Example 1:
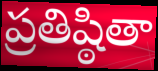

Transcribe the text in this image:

ప్రతిష్ఠితా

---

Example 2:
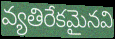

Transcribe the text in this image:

వ్యతిరేకమైనవి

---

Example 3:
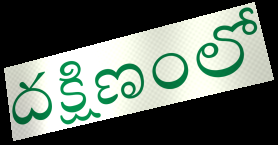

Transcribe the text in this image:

దక్షిణంలో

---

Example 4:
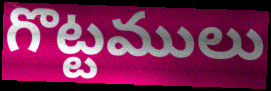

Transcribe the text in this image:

గొట్టములు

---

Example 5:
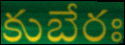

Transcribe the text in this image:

కుబేరః